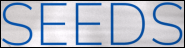
SEEDS